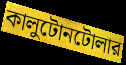
কালুটোনটোলার